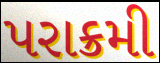
પરાક્રમી